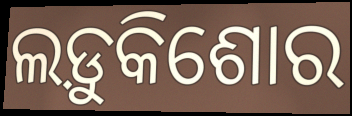
ଲଡ଼ୁକିଶୋର